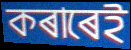
কৰাৰেই